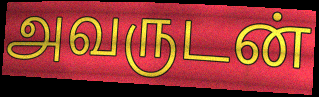
அவருடன்